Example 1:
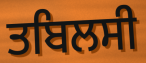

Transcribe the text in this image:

ਤਬਿਲਸੀ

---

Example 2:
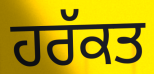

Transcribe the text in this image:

ਹਰੱਕਤ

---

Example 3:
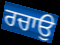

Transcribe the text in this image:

ਰਚਾਉ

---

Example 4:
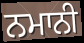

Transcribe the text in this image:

ਨਮਾਨੀ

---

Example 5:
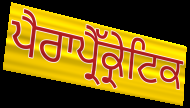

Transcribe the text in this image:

ਪੈਰਾਪ੍ਰੈੱਕ੍ਰੇਟਿਕ